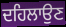
ਦਹਿਲਾਉਣ